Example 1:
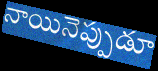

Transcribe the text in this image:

నాయినెప్పుడూ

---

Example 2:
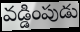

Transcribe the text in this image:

వడ్డింపుడు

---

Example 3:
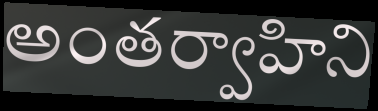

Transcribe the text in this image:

అంతర్వాహిని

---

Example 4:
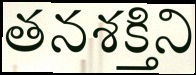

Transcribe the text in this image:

తనశక్తిని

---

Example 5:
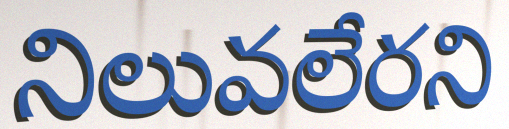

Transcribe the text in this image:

నిలువలేరని